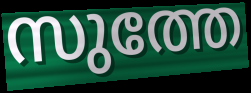
സുത്തേ